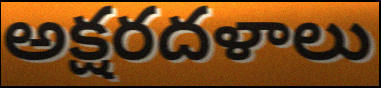
అక్షరదళాలు